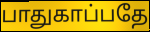
பாதுகாப்பதே